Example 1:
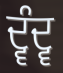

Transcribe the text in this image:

ਦ੍ਵੰਦ੍ਵ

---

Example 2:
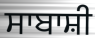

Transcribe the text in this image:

ਸਾਬਾਸ਼ੀ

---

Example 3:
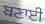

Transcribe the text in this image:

ਬਣਾਈ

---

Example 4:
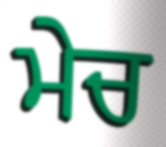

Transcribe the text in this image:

ਮੇਚ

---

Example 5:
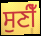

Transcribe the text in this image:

ਸੁਣੀਁ